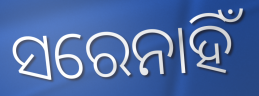
ସରେନାହିଁ